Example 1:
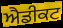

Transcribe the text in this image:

ਐਡੀਕਟ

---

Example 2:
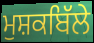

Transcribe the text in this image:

ਮੁਸ਼ਕਬਿੱਲੇ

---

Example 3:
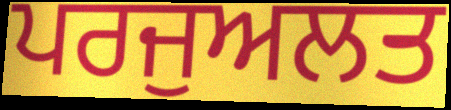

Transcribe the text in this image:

ਪਰਜੁਅਲਤ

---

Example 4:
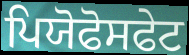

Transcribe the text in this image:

ਪਿਯੋਫੋਸਫੇਟ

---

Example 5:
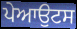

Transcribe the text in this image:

ਪੇਆਉਟਸ